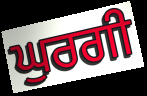
ਘੁਰਗੀ